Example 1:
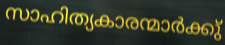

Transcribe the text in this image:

സാഹിത്യകാരന്മാർക്കു്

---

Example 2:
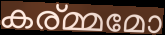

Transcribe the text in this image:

കര്മ്മമോ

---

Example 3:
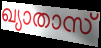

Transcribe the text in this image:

ഖ്യാതാസ്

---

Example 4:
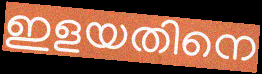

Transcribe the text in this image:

ഇളയതിനെ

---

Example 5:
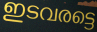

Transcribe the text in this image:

ഇടവരട്ടെ